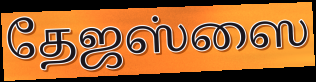
தேஜஸ்ஸை